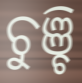
ଚୁଞ୍ଚି